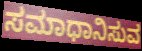
ಸಮಾಧಾನಿಸುವ